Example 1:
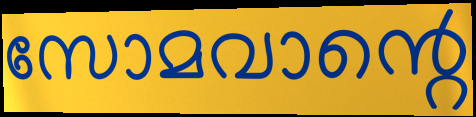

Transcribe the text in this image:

സോമവാന്റെ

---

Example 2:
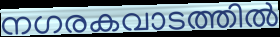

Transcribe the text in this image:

നഗരകവാടത്തിൽ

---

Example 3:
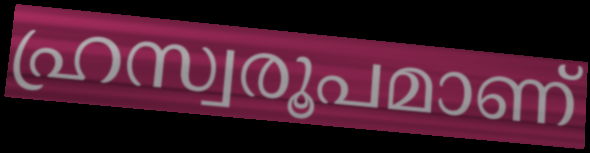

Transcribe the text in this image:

ഹ്രസ്വരൂപമാണ്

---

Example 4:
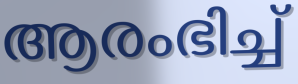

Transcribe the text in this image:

ആരംഭിച്ച്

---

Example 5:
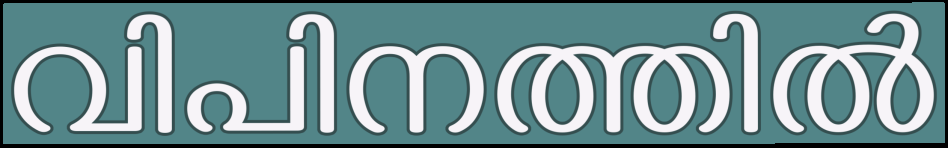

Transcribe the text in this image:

വിപിനത്തിൽ